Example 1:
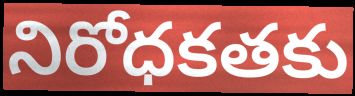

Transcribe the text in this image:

నిరోధకతకు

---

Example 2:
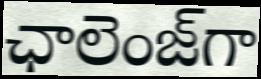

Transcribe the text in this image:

ఛాలెంజ్‌గా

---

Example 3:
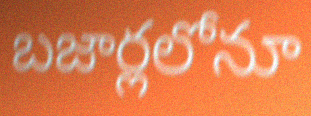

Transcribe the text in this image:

బజార్లలోనూ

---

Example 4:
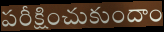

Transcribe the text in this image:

పరీక్షించుకుందాం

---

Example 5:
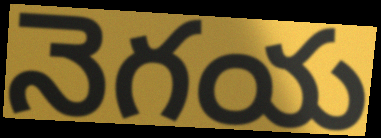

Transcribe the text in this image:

నెగయ